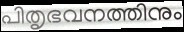
പിതൃഭവനത്തിനും